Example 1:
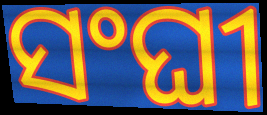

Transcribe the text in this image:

ସଂଘୀ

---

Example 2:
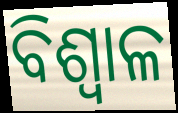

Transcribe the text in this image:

ବିଶ୍ୱାଳ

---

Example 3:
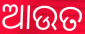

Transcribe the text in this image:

ଆଉତ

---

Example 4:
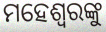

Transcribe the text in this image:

ମହେଶ୍ଵରଙ୍କୁ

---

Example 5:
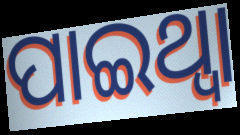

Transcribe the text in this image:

ପାଇଥ୍ବା